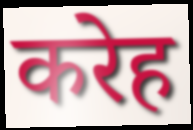
करेह